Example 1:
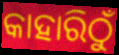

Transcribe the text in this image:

କାହାରିଠୁଁ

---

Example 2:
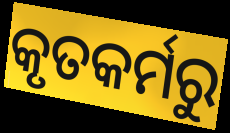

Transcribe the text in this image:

କୃତକର୍ମରୁ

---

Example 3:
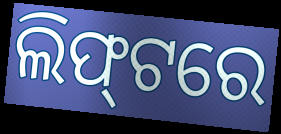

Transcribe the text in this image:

ଲିଫ୍‍ଟରେ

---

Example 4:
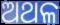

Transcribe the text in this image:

ଅଥଳ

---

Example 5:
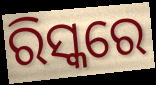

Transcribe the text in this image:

ରିସ୍କରେ